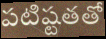
పటిష్టతతో